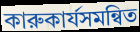
কারুকার্যসমন্বিত